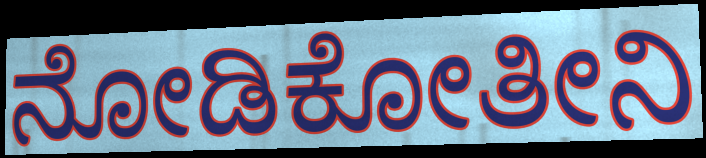
ನೋಡಿಕೋತೀನಿ